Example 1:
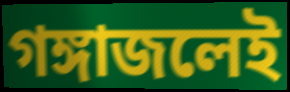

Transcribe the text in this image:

গঙ্গাজলেই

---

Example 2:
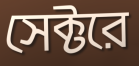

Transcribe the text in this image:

সেক্টরে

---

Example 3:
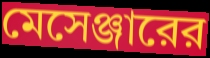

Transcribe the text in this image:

মেসেঞ্জারের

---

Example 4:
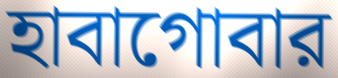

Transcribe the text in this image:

হাবাগোবার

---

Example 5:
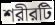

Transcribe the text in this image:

শরীরটি